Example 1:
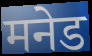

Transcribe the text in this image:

मनेड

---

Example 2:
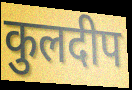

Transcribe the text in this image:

कुलदीप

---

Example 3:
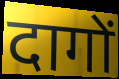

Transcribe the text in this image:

दागों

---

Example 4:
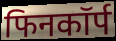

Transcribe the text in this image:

फिनकॉर्प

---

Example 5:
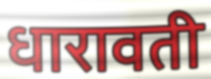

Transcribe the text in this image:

धारावती